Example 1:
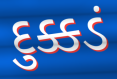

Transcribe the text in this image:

દુક્કડં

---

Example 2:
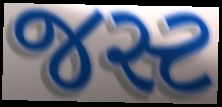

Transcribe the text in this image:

જસ્ટ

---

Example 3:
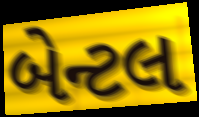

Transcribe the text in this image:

બેન્ટલ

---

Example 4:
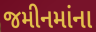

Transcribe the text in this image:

જમીનમાંના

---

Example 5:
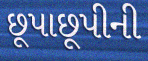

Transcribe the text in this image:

છૂપાછૂપીની